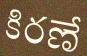
కిరణే